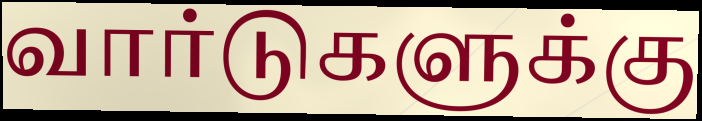
வார்டுகளுக்கு